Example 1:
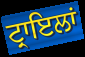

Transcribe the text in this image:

ਟ੍ਰਾਇਲਾਂ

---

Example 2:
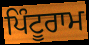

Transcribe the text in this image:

ਪਿੰਟੂਰਾਮ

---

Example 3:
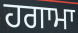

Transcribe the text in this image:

ਹਗਾਮਾ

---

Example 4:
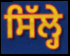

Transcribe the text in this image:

ਸਿੱਲ੍ਹੇ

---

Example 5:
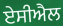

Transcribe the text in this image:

ਏਸੀਐਲ